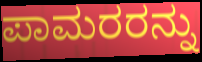
ಪಾಮರರನ್ನು